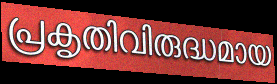
പ്രകൃതിവിരുദ്ധമായ